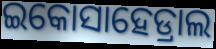
ଇକୋସାହେଡ୍ରାଲ